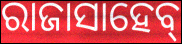
ରାଜାସାହେବ୍